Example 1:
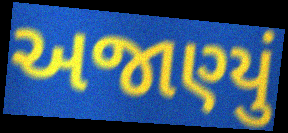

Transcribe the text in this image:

અજાણ્યું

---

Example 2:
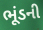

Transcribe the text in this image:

ભૂંડની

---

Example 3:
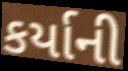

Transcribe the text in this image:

કર્યાની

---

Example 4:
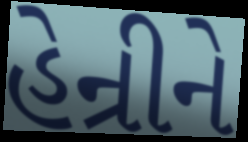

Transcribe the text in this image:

હેન્રીને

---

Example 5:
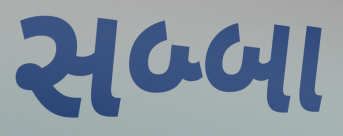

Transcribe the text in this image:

સબ્બા